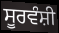
ਸੂਰਵੰਸ਼ੀ